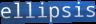
ellipsis